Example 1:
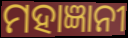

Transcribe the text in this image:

ମହାଜ୍ଞାନୀ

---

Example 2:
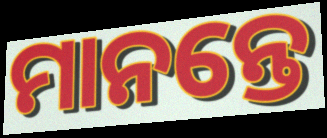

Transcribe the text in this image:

ମାନନ୍ତେ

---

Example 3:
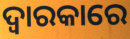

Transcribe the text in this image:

ଦ୍ବାରକାରେ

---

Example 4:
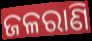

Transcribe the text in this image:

ଜଳରାଣି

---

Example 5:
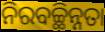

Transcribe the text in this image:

ନିରବଚ୍ଛିନ୍ନତା